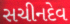
સચીનદેવ